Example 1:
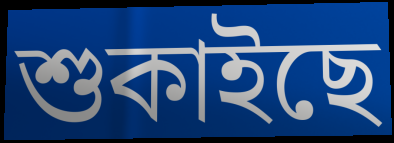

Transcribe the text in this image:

শুকাইছে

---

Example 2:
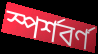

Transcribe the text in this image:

স্পৰ্শবৰ্ণ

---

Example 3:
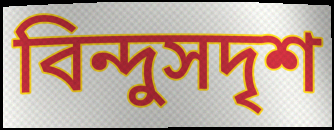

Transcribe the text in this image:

বিন্দুসদৃশ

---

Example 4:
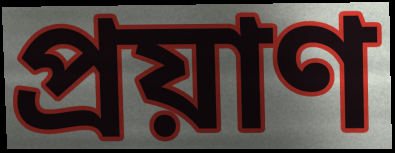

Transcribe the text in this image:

প্ৰয়াণ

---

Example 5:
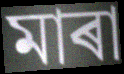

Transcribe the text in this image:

মাৰা